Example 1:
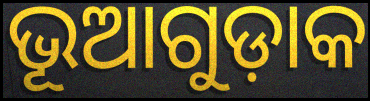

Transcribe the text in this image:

ଭୂଆଗୁଡ଼ାକ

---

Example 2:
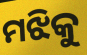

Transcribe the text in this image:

ମଝିକୁ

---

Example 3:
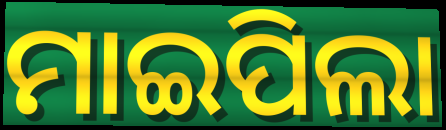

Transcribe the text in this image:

ମାଇପିଲା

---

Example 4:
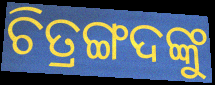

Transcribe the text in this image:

ଚିତ୍ରଙ୍ଗଦଙ୍କୁ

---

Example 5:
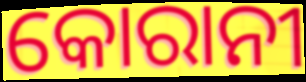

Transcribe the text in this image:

କୋରାନୀ